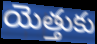
యెత్తుకు